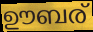
ഊബര്